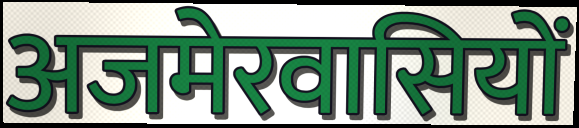
अजमेरवासियों